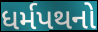
ધર્મપથનો